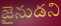
జైనుడని